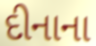
દીનાના